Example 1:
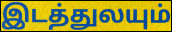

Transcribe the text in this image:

இடத்துலயும்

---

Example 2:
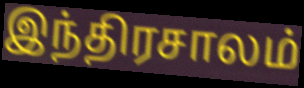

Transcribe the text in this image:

இந்திரசாலம்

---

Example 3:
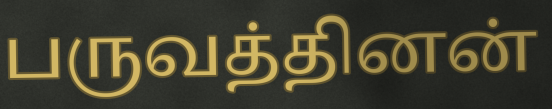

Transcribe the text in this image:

பருவத்தினன்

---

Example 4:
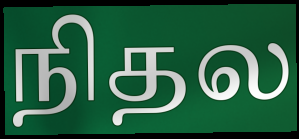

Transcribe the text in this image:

நிதல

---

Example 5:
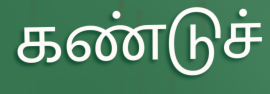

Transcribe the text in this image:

கண்டுச்